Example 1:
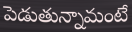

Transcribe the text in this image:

పెడుతున్నామంటే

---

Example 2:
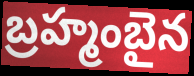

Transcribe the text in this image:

బ్రహ్మంబైన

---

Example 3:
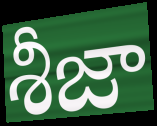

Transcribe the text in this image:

శీజా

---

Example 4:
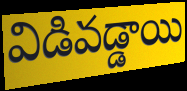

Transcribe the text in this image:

విడివడ్డాయి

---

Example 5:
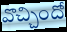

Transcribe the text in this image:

వొచ్చిందో